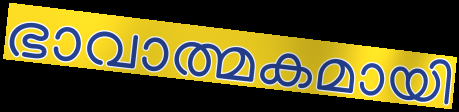
ഭാവാത്മകമായി